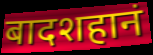
बादशहानं